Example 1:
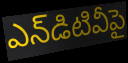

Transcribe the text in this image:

ఎన్‌డిటివీపై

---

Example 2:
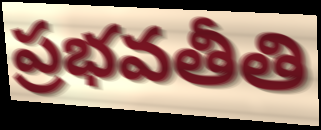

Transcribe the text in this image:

ప్రభవతీతి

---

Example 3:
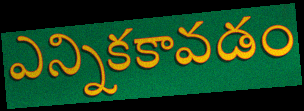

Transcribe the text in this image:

ఎన్నికకావడం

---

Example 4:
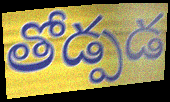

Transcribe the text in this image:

తోడ్పడ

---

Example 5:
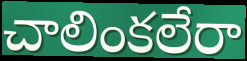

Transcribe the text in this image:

చాలింకలేరా